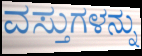
ವಸ್ತುಗಳನ್ನು